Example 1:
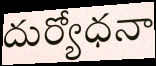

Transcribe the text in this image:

దుర్యోధనా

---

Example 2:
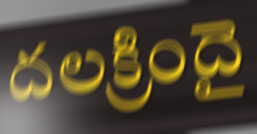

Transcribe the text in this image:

దలక్రిందై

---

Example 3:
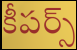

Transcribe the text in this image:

కీపర్స్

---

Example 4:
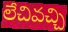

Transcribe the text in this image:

లేచివచ్చి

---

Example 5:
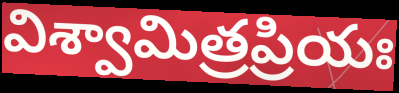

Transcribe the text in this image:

విశ్వామిత్రప్రియః